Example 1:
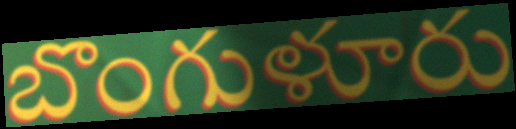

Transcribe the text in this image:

బొంగుళూరు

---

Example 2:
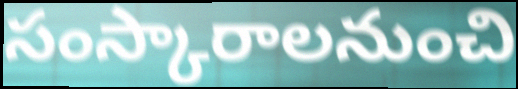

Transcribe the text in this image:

సంస్కారాలనుంచి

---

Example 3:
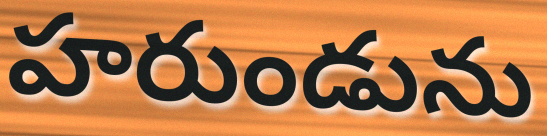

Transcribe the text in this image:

హరుండును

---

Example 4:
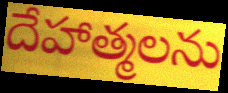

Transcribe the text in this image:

దేహాత్మలను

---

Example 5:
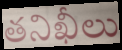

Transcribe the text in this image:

తనిఖీలు